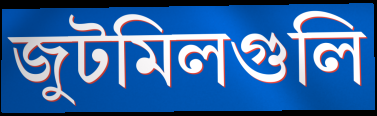
জুটমিলগুলি